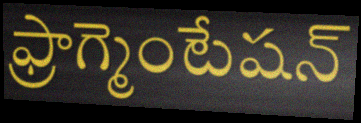
ఫ్రాగ్మెంటేషన్